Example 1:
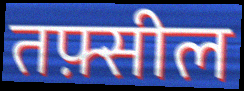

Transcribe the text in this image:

तफ़्सील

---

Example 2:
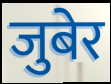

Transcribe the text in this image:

जुबेर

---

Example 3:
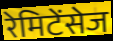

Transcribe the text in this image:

रेमिटेंसेज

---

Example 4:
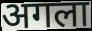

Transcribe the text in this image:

अगला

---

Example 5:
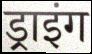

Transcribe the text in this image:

ड्राइंग